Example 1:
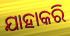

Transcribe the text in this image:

ଯାହାକରି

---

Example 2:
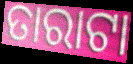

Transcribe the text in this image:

ତାରାଟା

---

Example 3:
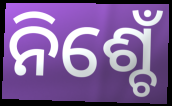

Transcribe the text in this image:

ନିଶ୍ଚେଁ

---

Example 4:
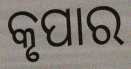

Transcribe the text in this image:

କୃପାର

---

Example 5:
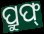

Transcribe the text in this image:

ପ୍ରୁଫ୍